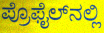
ಪ್ರೊಫೈಲ್‌ನಲ್ಲಿ